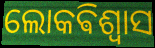
ଲୋକଵିଶ୍ଵାସ